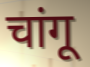
चांगू